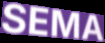
SEMA